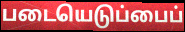
படையெடுப்பைப்